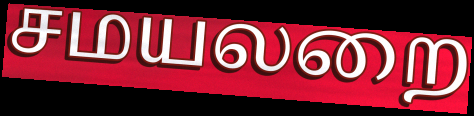
சமயலறை